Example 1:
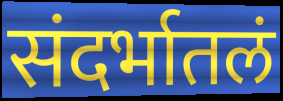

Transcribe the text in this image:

संदर्भातलं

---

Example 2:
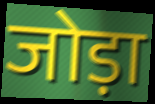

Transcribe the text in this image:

जोड़ा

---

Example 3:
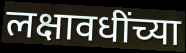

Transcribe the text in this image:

लक्षावधींच्या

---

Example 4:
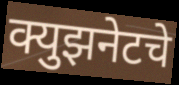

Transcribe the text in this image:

क्युझनेटचे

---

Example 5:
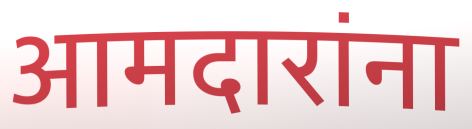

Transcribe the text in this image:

आमदारांना